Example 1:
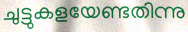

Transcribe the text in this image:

ചുട്ടുകളയേണ്ടതിന്നു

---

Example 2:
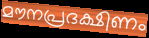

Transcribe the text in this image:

മൗനപ്രദക്ഷിണം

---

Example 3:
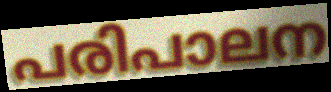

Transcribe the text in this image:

പരിപാലന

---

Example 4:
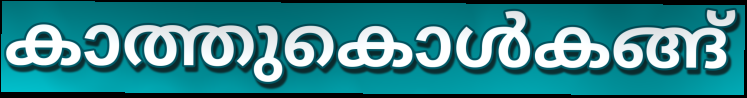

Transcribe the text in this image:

കാത്തുകൊൾകങ്ങ്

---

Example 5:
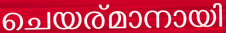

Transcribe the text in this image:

ചെയര്മാനായി